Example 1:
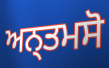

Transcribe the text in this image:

ਅਨ੍ਤਮਸੋ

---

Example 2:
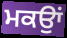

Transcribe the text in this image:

ਮਕਉਾਂ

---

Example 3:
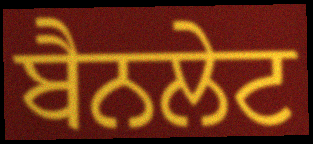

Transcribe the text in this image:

ਬੈਨਲੇਟ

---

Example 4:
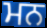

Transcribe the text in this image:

ਮਨ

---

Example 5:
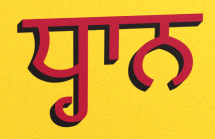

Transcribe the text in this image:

ਧ੍ਹਾਨ